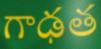
గాఢత